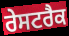
ਰੇਸਟਰੈਕ